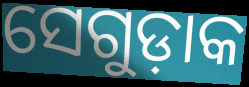
ସେଗୁଡ଼ାକ